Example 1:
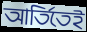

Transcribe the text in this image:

আর্তিতেই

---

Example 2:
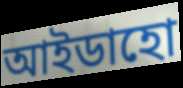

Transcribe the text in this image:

আইডাহো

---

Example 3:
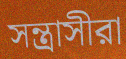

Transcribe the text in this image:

সন্ত্রাসীরা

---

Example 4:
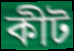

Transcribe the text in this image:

কীট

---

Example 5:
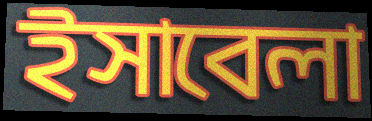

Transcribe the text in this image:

ইসাবেলা